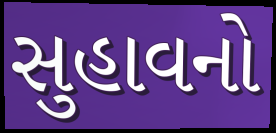
સુહાવનો